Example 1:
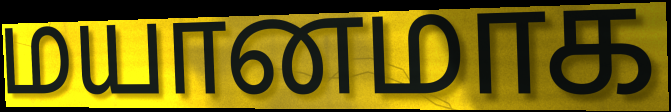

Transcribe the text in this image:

மயானமாக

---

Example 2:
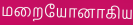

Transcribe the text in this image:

மறையோனாகிய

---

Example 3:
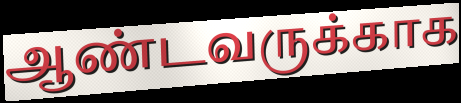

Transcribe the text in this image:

ஆண்டவருக்காக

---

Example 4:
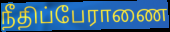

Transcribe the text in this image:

நீதிப்பேராணை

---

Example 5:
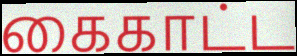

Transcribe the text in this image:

கைகாட்ட